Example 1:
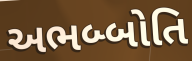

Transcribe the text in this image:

અભબ્બોતિ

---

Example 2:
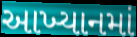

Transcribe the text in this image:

આખ્યાનમાં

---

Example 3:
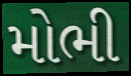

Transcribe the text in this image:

મોભી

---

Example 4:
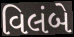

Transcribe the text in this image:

વિલંબે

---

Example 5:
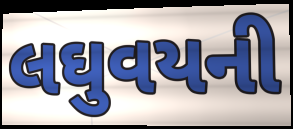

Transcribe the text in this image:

લઘુવયની